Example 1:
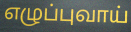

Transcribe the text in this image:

எழுப்புவாய்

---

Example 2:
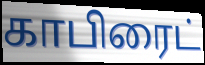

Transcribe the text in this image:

காபிரைட்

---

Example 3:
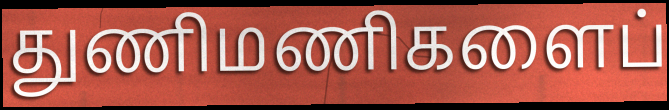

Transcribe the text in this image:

துணிமணிகளைப்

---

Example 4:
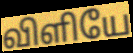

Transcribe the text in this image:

விளியே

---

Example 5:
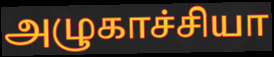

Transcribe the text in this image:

அழுகாச்சியா